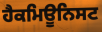
ਹੈਕਮਿਊਨਿਸਟ